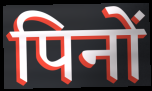
पिनों